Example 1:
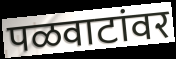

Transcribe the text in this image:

पळवाटांवर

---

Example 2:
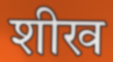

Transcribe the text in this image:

शीख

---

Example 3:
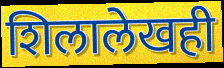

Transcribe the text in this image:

शिलालेखही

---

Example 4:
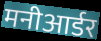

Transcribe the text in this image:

मनीआर्डर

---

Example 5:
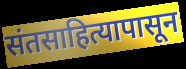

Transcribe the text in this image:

संतसाहित्यापासून